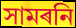
সামৰনি